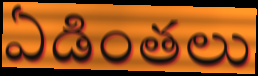
ఏడింతలు